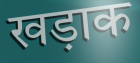
खड़ाक